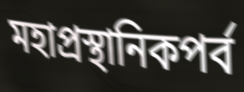
মহাপ্রস্থানিকপর্ব